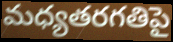
మధ్యతరగతిపై